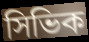
সিভিক